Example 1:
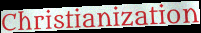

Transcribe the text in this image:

Christianization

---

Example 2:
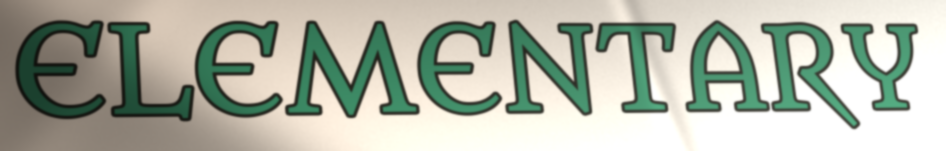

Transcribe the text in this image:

ELEMENTARY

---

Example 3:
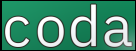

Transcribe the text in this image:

coda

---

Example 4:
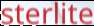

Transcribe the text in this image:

sterlite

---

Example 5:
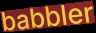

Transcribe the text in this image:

babbler